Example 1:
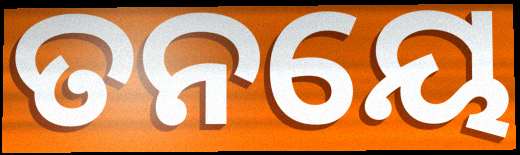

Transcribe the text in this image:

ତନୟେ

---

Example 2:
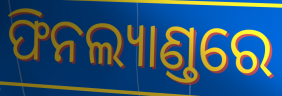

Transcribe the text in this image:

ଫିନଲ୍ୟାଣ୍ଡରେ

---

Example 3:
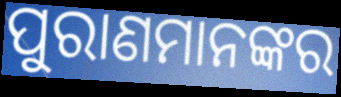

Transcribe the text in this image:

ପୁରାଣମାନଙ୍କର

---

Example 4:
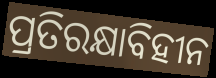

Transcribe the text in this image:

ପ୍ରତିରକ୍ଷାବିହୀନ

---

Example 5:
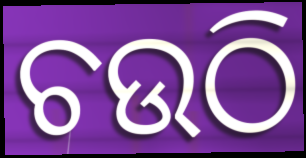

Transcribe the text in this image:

ଚଉଠି